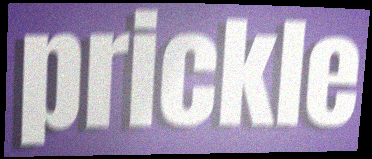
prickle